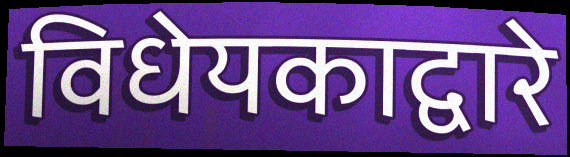
विधेयकाद्वारे